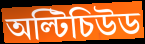
অল্টিচিউড